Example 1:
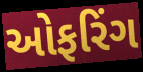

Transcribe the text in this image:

ઓફરિંગ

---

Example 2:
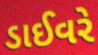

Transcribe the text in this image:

ડાઈવરે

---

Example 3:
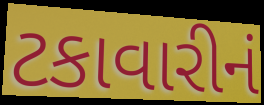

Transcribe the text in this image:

ટકાવારીનં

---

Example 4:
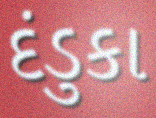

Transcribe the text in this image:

દંડુકા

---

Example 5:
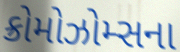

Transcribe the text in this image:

ક્રોમોઝોમ્સના